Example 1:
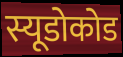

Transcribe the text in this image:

स्यूडोकोड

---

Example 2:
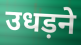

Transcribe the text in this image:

उधड़ने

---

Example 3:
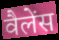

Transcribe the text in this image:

वैलेंस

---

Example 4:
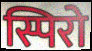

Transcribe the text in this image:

स्पिरो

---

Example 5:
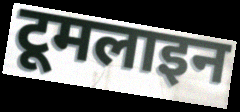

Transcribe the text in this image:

टूमलाइन